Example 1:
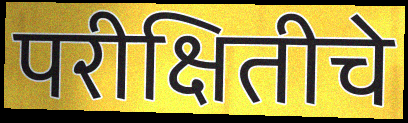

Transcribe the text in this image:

परीक्षितीचे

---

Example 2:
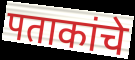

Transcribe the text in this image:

पताकांचे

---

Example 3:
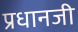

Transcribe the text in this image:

प्रधानजी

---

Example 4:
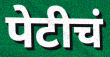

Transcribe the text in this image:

पेटीचं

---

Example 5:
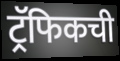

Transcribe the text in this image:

ट्रॅफिकची